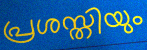
പ്രശസ്തിയും